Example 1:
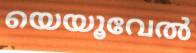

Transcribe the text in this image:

യെയൂവേൽ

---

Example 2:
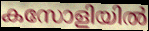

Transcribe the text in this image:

കസോളിയിൽ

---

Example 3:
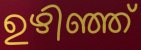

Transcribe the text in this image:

ഉഴിഞ്ഞ്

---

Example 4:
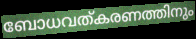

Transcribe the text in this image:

ബോധവത്കരണത്തിനും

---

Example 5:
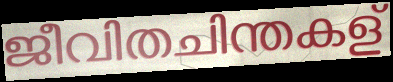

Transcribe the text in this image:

ജീവിതചിന്തകള്